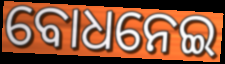
ବୋଧନେଇ